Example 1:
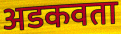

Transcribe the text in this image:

अडकवता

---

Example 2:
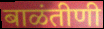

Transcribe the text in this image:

बाळंतीणी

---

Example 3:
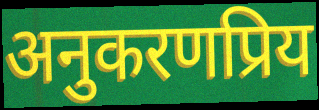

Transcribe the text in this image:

अनुकरणप्रिय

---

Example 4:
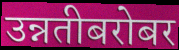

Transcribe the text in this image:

उन्नतीबरोबर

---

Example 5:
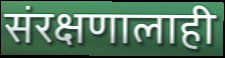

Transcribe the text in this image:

संरक्षणालाही